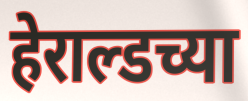
हेराल्डच्या